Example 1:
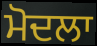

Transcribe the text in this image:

ਮੋਦਲਾ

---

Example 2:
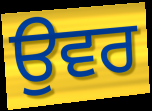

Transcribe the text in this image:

ਉਵਰ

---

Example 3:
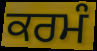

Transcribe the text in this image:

ਕਰਮੰ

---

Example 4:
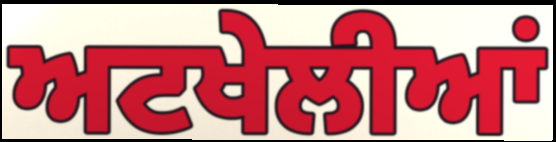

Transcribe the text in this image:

ਅਟਖੇਲੀਆਂ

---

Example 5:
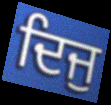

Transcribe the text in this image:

ਦਿਜੁ